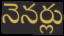
నెనర్లు